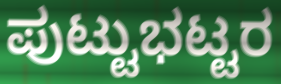
ಪುಟ್ಟುಭಟ್ಟರ